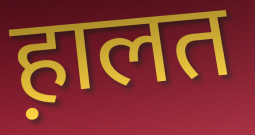
ह़ालत